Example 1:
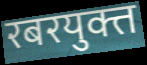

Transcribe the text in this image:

रबरयुक्त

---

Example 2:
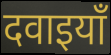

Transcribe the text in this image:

दवाइयाँ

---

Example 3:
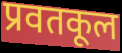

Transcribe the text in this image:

प्रवतकूल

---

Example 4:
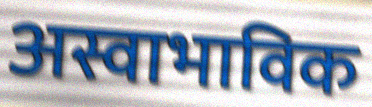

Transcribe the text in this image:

अस्वाभाविक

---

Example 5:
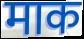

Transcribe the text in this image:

माक